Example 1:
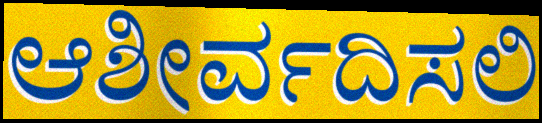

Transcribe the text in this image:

ಆಶೀರ್ವದಿಸಲಿ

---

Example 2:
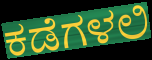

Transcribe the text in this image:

ಕಡೆಗಳಲಿ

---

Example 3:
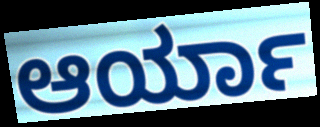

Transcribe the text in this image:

ಆರ್ಯಾ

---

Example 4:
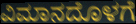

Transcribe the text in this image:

ವಿಮಾನದೊಳಗೆ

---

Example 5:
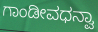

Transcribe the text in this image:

ಗಾಂಡೀವಧನ್ವಾ